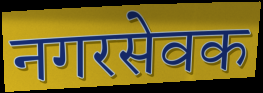
नगरसेवक